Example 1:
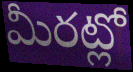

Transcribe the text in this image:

మీరట్లో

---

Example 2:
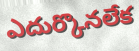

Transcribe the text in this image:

ఎదుర్కొనలేక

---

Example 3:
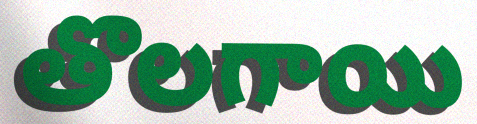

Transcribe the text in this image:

తొలగాయి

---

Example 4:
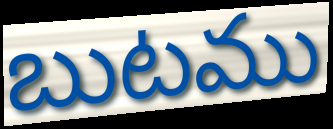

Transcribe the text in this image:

బుటము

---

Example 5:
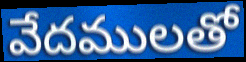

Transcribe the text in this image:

వేదములతో